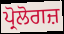
ਪ੍ਰੋਲੋਗਜ਼